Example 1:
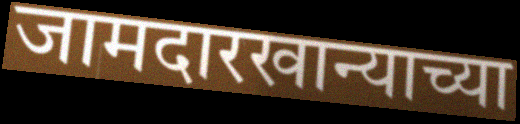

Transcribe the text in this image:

जामदारखान्याच्या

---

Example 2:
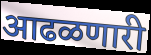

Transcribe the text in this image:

आढळणारी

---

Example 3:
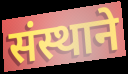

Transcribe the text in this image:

संस्थाने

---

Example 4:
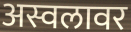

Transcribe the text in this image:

अस्वलावर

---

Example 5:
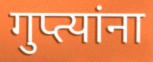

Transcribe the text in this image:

गुप्त्यांना